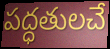
పద్ధతులచే